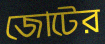
জোটের